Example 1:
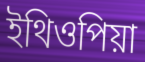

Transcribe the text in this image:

ইথিওপিয়া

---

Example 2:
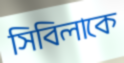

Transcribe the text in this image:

সিবিলাকে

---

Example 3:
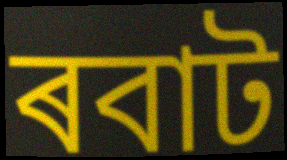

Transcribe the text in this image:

ৰবাট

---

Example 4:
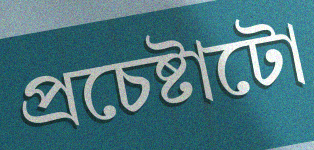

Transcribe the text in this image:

প্ৰচেষ্টাটো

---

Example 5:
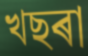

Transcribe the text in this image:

খছৰা